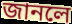
জানলে